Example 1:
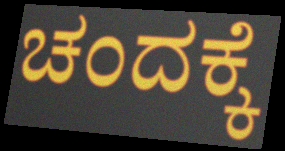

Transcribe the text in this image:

ಚಂದಕ್ಕೆ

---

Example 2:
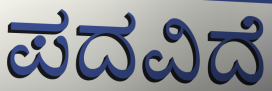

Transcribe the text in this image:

ಪದವಿದೆ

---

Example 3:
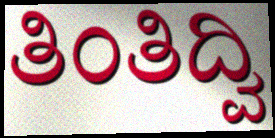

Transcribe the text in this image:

ತಿಂತಿದ್ವಿ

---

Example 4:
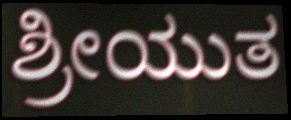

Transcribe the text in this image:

ಶ್ರೀಯುತ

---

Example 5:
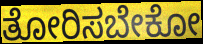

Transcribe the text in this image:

ತೋರಿಸಬೇಕೋ